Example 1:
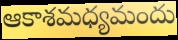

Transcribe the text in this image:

ఆకాశమధ్యమందు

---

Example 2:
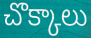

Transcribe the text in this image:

చొక్కాలు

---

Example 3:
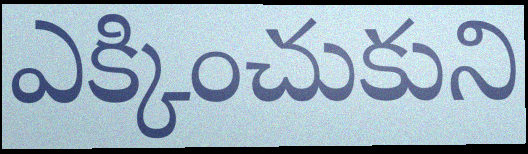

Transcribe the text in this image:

ఎక్కించుకుని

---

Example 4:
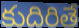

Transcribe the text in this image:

కుదిరితే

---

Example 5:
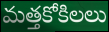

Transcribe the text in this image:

మత్తకోకిలలు